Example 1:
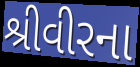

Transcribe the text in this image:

શ્રીવીરના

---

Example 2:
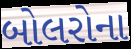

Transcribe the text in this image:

બોલરોના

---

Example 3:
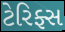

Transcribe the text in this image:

ટેરિફ્સ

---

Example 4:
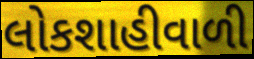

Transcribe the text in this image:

લોકશાહીવાળી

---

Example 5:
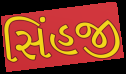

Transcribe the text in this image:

સિંહજી